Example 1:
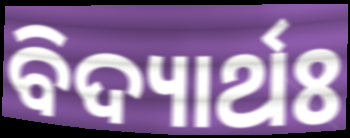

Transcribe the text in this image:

ବିଦ୍ୟାର୍ଥଃ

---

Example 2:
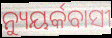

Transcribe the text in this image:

ନ୍ୟୁୟର୍କବାସୀ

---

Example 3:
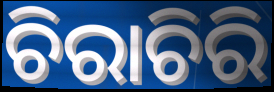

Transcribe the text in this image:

ଚିରାଚିରି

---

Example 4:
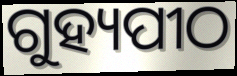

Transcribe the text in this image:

ଗୁହ୍ୟପୀଠ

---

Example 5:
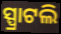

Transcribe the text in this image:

ସ୍ପ୍ରାଟଲି